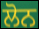
ਲੋਨ